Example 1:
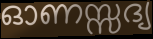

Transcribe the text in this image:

ഓണസ്സദ്യ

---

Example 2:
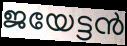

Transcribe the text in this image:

ജയേട്ടൻ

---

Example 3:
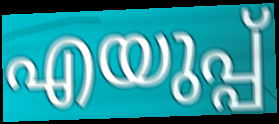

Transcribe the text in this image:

എയുപ്പ്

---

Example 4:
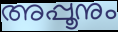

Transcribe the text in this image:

അപ്പൂനും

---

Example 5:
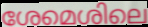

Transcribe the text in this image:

ശേമെശിലെ